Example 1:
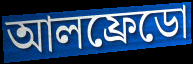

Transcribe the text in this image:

আলফ্রেডো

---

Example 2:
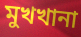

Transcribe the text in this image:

মুখখানা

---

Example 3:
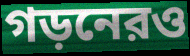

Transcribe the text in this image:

গড়নেরও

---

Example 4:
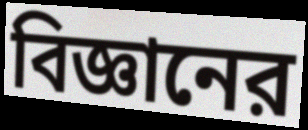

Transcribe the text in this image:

বিজ্ঞানের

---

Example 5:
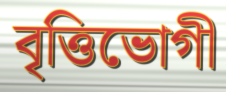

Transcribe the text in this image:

বৃত্তিভোগী